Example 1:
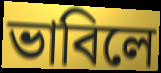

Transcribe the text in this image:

ভাবিলে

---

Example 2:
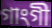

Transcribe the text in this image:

গাংগী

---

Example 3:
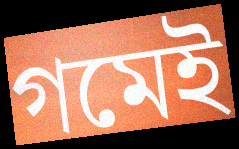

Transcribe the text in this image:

গমেই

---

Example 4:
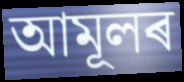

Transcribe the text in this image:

আমূলৰ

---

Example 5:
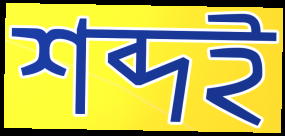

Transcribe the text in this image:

শব্দই